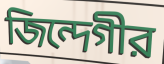
জিন্দেগীর